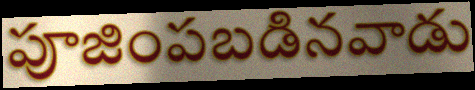
పూజింపబడినవాడు